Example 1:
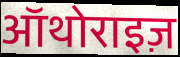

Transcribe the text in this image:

ऑथोराइज़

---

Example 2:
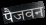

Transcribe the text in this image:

पैजवन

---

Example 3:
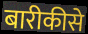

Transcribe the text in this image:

बारीकीसे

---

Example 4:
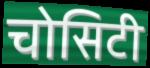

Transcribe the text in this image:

चोसिटी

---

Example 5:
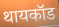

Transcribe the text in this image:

थायकॉड